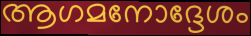
ആഗമനോദ്ദേശം